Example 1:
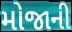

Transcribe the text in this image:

મોજાની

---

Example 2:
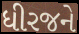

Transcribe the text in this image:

ધીરજને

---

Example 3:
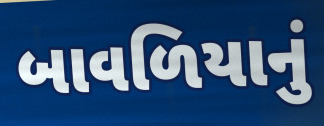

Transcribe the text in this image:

બાવળિયાનું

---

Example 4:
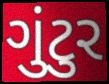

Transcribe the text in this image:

ગુંટુર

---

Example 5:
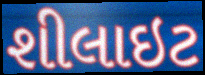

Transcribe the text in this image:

શીલાઇટ